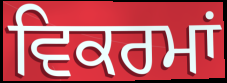
ਵਿਕਰਮਾਂ